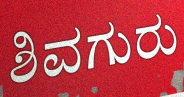
ಶಿವಗುರು